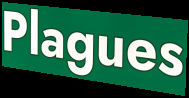
Plagues